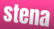
stena